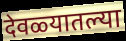
देवळ्यातल्या